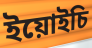
ইয়োইচি